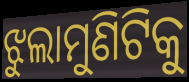
ଝୁଲାମୁଣିଟିକୁ